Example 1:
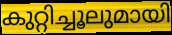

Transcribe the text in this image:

കുറ്റിച്ചൂലുമായി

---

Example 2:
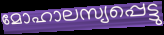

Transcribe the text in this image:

മോഹാലസ്യപ്പെട്ടു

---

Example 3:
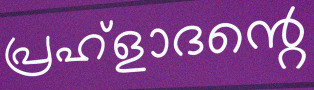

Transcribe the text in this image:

പ്രഹ്ളാദന്റെ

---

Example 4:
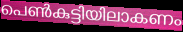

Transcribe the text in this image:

പെൺകുട്ടിയിലാകണം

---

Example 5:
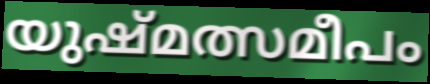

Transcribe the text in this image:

യുഷ്മത്സമീപം